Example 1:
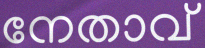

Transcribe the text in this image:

നേതാവ്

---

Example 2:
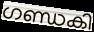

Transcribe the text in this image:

ഗണ്ഡകി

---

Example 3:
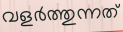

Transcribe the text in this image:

വളർത്തുന്നത്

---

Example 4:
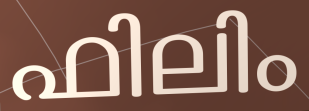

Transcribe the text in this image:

ഫിലിം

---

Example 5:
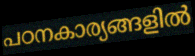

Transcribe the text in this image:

പഠനകാര്യങ്ങളിൽ